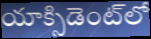
యాక్సిడెంట్‌లో